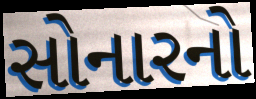
સોનારનો